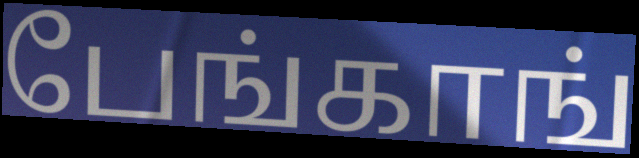
பேங்காங்